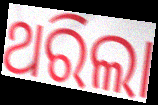
ଥରିଲା